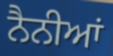
ਨੈਨੀਆਂ